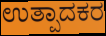
ಉತ್ಪಾದಕರ